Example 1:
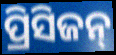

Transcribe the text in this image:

ପ୍ରିସିଜନ୍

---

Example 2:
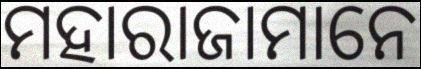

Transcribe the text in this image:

ମହାରାଜାମାନେ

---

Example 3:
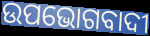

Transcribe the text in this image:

ଉପଭୋଗବାଦୀ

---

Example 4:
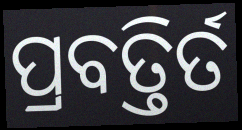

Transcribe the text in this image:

ପ୍ରବତ୍ତିର୍ତ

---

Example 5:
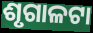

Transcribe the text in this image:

ଶୃଗାଳଟା